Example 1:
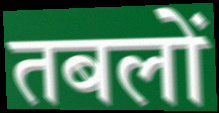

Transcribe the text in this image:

तबलों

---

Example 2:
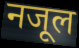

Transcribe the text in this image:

नजूल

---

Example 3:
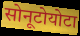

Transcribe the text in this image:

सोनूटोयोटा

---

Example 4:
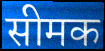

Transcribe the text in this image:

सीमक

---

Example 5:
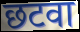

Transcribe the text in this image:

छटवा